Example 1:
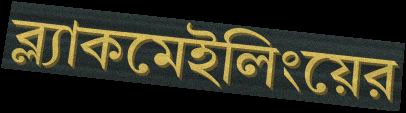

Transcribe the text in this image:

ব্ল্যাকমেইলিংয়ের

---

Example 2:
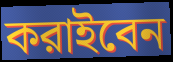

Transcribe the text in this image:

করাইবেন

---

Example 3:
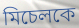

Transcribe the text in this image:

মিচেলকে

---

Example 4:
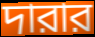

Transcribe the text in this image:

দারার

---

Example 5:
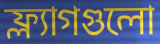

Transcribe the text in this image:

ফ্ল্যাগগুলো